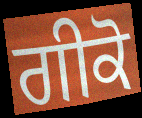
ਗੀਕੋ